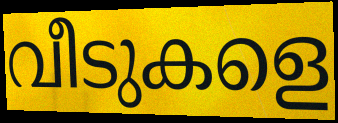
വീടുകളെ